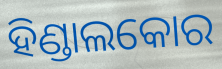
ହିଣ୍ଡାଲକୋର